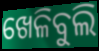
ଖେଳିବୁଲି